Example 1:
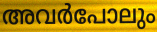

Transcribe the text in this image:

അവർപോലും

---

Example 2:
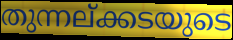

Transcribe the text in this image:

തുന്നല്ക്കടയുടെ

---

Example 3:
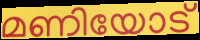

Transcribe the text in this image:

മണിയോട്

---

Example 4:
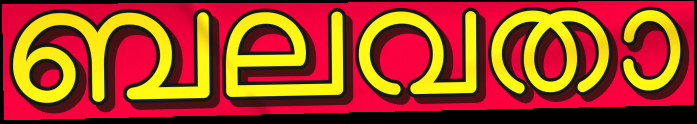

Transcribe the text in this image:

ബലവതാ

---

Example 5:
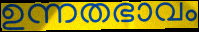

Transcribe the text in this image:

ഉന്നതഭാവം